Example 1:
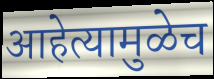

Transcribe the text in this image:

आहेत्यामुळेच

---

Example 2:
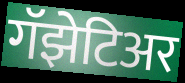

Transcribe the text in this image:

गॅझेटिअर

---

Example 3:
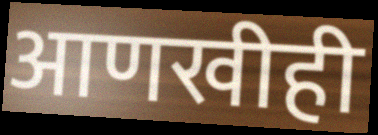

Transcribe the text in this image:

आणखीही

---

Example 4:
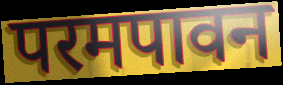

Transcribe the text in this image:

परमपावन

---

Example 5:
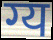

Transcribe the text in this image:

ग्य